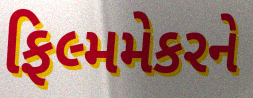
ફિલ્મમેકરને